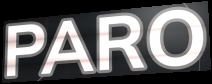
PARO